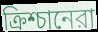
ক্রিশ্চানেরা